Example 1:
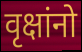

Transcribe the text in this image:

वृक्षांनो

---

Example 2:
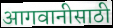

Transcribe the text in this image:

आगवानीसाठी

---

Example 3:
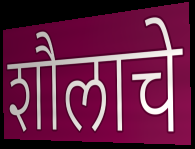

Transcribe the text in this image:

शौलाचे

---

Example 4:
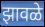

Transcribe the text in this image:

झावळे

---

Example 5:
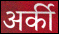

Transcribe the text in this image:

अर्की